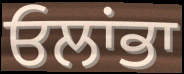
ਓਲਾਂਭਾ